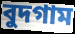
বুদগাম